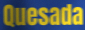
Quesada